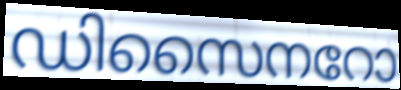
ഡിസൈനറോ